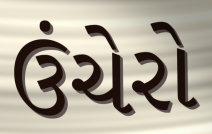
ઉંચેરો